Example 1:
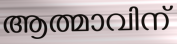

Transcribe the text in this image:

ആത്മാവിന്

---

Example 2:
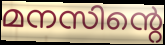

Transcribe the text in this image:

മനസിന്റെ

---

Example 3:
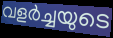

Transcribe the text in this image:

വളർച്ചയുടെ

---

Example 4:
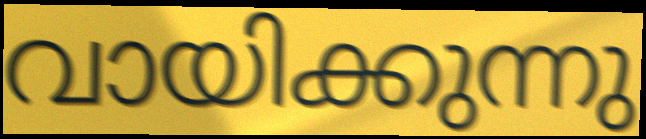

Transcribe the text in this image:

വായിക്കുന്നു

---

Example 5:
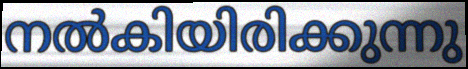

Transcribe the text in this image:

നൽകിയിരിക്കുന്നു